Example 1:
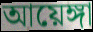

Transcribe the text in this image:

আয়েঙ্গা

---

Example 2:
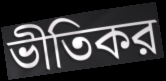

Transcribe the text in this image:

ভীতিকর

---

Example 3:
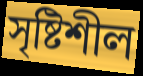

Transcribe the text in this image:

সৃষ্টিশীল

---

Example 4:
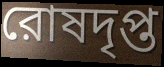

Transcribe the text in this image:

রোষদৃপ্ত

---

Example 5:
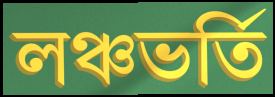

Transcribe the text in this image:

লঞ্চভর্তি